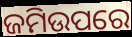
ଜମିଉପରେ